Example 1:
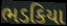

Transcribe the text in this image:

ભડકિયા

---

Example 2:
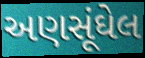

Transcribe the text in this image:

અણસૂંઘેલ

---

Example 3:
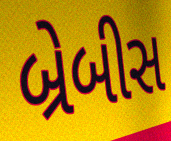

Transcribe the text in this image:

બ્રેબીસ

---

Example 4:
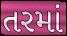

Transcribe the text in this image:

તરમાં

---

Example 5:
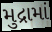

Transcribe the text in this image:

મુદ્રામાં